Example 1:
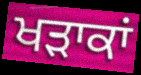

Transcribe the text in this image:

ਖੜਾਕਾਂ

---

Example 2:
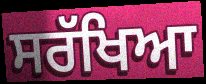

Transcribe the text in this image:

ਸਰੱਖਿਆ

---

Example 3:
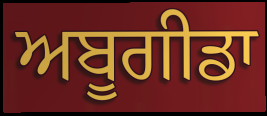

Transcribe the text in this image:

ਅਬੂਗੀਡਾ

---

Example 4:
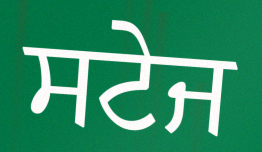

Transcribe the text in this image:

ਸਟੇਜ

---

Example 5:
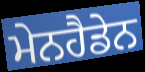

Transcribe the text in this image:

ਮੇਨਹੈਡੇਨ